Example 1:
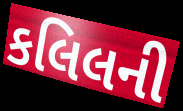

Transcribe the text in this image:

કલિલની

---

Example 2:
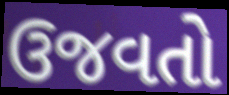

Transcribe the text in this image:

ઉજવતો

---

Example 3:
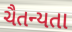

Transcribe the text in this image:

ચૈતન્યતા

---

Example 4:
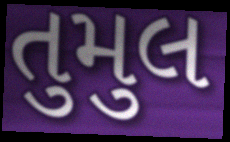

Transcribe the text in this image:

તુમુલ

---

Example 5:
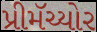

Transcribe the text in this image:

પ્રીમૅચ્યોર